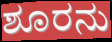
ಶೂರನು